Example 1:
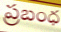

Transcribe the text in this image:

ప్రబంధ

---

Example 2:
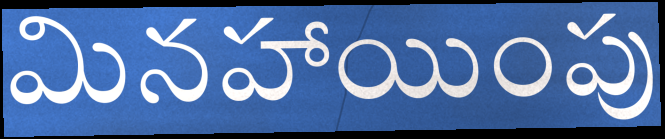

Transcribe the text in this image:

మినహాయింపు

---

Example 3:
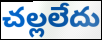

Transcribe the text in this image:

చల్లలేదు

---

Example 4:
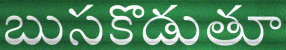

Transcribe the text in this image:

బుసకొడుతూ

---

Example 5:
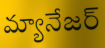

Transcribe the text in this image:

మ్యానేజర్